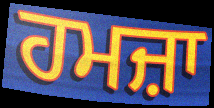
ਹਮਜ਼ਾ